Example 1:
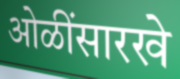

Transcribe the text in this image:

ओळींसारखे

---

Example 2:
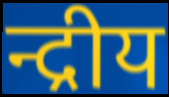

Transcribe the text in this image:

न्द्रीय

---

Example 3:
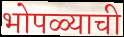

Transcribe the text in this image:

भोपळ्याची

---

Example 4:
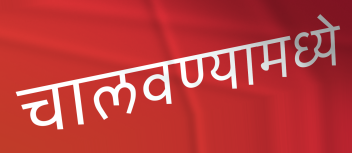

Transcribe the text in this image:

चालवण्यामध्ये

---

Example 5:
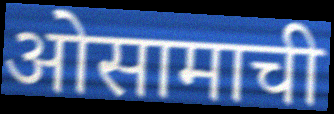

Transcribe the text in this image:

ओसामाची